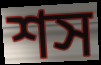
শস